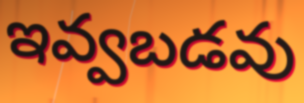
ఇవ్వబడవు